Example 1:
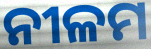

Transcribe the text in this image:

ନୀଳମ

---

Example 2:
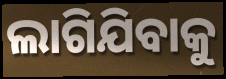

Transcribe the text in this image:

ଲାଗିଯିବାକୁ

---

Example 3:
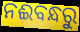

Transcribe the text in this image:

ନଈବନ୍ଧରୁ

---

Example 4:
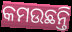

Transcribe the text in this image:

କମଉଛନ୍ତି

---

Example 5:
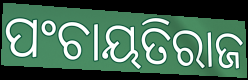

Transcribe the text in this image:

ପଂଚାୟତିରାଜ